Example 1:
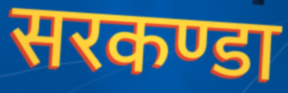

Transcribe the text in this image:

सरकण्डा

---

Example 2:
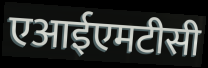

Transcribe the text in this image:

एआईएमटीसी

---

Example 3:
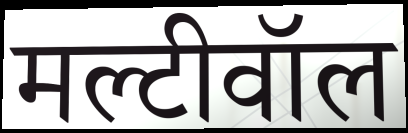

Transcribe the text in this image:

मल्टीवॉल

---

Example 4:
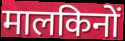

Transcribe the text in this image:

मालकिनों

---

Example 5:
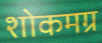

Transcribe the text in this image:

शोकमग्र